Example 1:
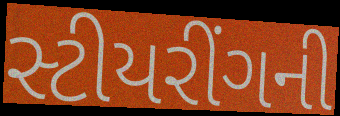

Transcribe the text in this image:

સ્ટીયરીંગની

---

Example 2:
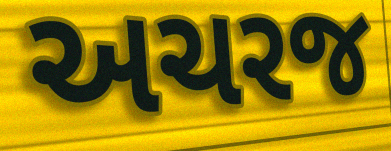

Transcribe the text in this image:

અચરજ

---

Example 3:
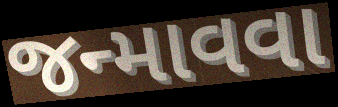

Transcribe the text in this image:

જન્માવવા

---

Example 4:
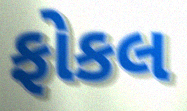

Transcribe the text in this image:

ફોકલ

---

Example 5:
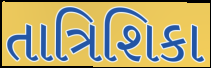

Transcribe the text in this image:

તાત્રિશિકા